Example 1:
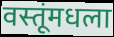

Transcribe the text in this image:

वस्तूंमधला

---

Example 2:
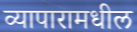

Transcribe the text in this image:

व्यापारामधील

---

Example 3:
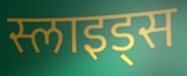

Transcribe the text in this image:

स्लाइड्स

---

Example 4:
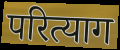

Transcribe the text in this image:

परित्याग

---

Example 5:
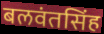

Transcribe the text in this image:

बलवंतसिंह